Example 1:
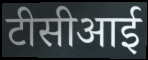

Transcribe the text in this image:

टीसीआई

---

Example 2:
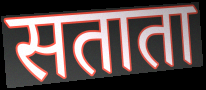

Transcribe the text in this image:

सताता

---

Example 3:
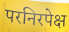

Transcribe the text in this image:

परनिरपेक्ष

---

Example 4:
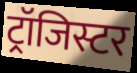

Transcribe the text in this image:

ट्रॉजिस्टर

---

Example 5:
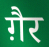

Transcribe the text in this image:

ग़ैर